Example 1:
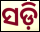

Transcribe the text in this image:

ସଡ଼ି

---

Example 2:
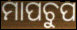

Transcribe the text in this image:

ମାପଚୁପ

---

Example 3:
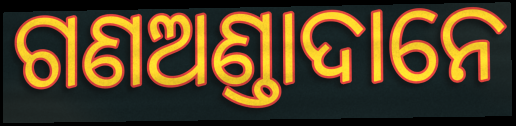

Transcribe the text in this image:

ଗଣଅଣ୍ଡାଦାନେ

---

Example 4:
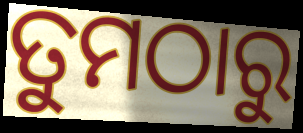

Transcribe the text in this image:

ତୁମଠାରୁ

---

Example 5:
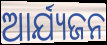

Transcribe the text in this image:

ଆର୍ଯ୍ୟଜନ